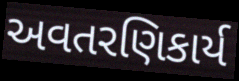
અવતરણિકાર્ય